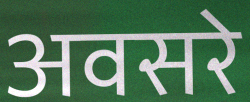
अवसरे